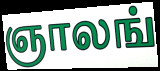
ஞாலங்